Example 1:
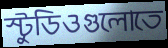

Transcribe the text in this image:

স্টুডিওগুলোতে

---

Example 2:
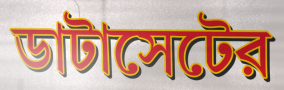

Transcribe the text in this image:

ডাটাসেটের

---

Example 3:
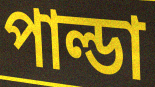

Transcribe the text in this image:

পাল্ডা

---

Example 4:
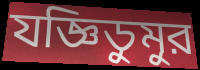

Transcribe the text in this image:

যজ্ঞিডুমুর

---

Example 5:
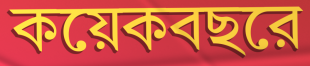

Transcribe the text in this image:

কয়েকবছরে